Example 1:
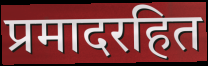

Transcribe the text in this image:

प्रमादरहित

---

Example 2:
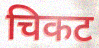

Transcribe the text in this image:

चिकट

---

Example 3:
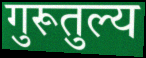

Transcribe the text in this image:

गुरूतुल्य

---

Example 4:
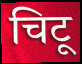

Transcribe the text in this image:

चिटू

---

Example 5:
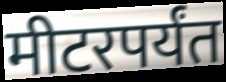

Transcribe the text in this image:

मीटरपर्यंत